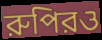
রুপিরও